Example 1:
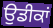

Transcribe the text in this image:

ਉਡੀਕਾਂ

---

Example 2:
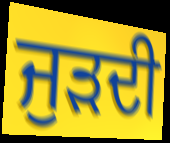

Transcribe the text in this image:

ਜੁੜਦੀ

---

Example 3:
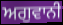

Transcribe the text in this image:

ਅਗੁਵਾਨੀ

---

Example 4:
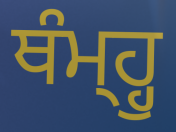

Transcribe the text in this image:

ਥੰਮ੍ਹ੍ਹੁ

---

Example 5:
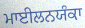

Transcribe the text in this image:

ਮਾਈਲਨਯੰਕਾ